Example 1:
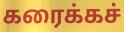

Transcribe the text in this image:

கரைக்கச்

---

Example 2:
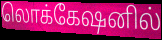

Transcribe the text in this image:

லொக்கேஷனில்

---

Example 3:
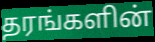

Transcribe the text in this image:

தரங்களின்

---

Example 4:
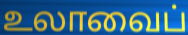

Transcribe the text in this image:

உலாவைப்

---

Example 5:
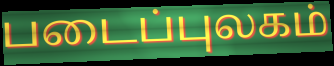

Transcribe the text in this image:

படைப்புலகம்